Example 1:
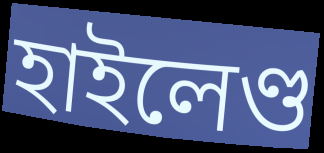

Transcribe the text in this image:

হাইলেণ্ড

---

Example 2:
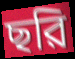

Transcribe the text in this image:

ছৱি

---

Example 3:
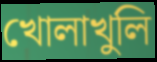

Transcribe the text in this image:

খোলাখুলি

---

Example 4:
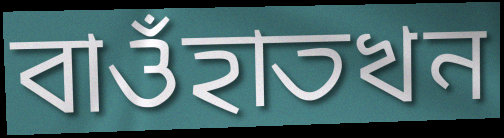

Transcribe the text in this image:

বাওঁহাতখন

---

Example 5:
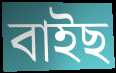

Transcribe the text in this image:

বাইছ